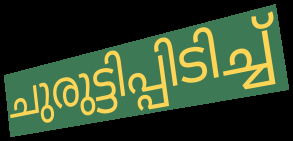
ചുരുട്ടിപ്പിടിച്ച്